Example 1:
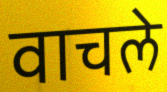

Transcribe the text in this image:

वाचले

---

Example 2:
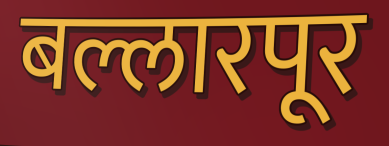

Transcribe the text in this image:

बल्लारपूर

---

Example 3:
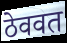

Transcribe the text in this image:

ठेववत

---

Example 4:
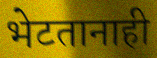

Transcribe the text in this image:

भेटतानाही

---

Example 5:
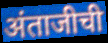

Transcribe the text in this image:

अंताजीची